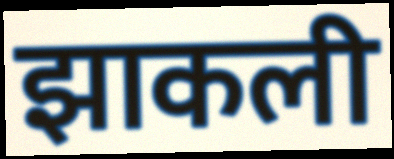
झाकली